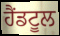
ਹੈਂਡਟੂਲ